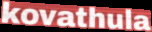
kovathula